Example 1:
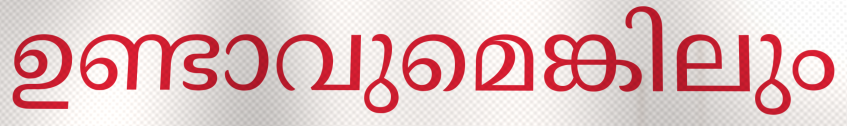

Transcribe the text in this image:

ഉണ്ടാവുമെങ്കിലും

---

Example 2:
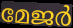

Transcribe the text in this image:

മേജർ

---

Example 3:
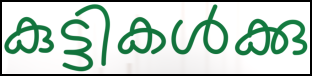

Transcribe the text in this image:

കുട്ടികൾക്കു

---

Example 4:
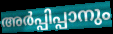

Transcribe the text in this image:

അർപ്പിപ്പാനും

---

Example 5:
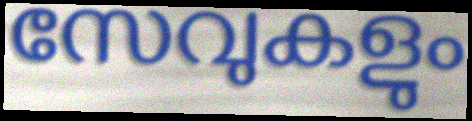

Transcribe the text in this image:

സേവുകളും